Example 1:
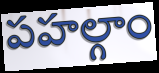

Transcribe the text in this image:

పహల్గాం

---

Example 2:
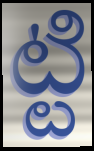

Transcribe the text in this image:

ట్టి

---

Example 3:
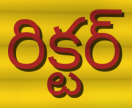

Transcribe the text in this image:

రిక్టర్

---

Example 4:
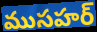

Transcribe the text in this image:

ముసహర్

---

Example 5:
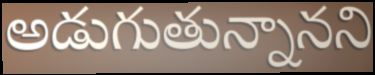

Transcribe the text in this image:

అడుగుతున్నానని